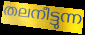
തലനീട്ടുന്ന